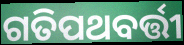
ଗତିପଥବର୍ତ୍ତୀ